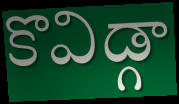
కొవిడ్గా